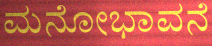
ಮನೋಭಾವನೆ